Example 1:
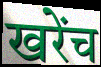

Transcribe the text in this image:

खरेंच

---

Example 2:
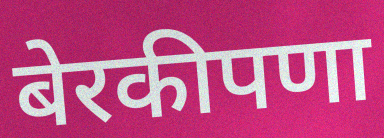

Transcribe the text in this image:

बेरकीपणा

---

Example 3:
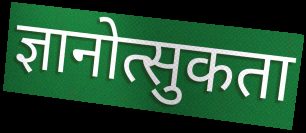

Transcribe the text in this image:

ज्ञानोत्सुकता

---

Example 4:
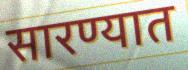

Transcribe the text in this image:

सारण्यात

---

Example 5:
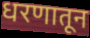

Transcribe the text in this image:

धरणातून